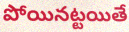
పోయినట్టయితే